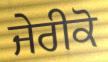
ਜੇਰੀਕੋ